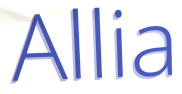
Allia